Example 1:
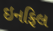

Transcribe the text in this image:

ઇનફિલ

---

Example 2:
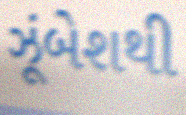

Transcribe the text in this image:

ઝૂંબેશથી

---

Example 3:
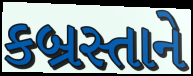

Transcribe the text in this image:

કબ્રસ્તાને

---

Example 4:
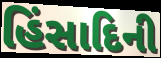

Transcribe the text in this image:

હિંસાદિની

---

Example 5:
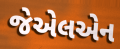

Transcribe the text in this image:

જેએલએન